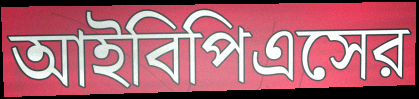
আইবিপিএসের